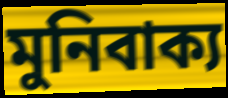
মুনিবাক্য